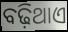
ବଢ଼ିଥାଏ